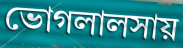
ভোগলালসায়